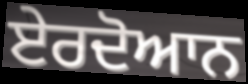
ਏਰਦੋਆਨ